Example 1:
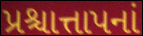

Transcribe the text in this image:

પ્રશ્ચાત્તાપનાં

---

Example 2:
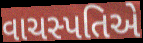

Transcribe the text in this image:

વાચસ્પતિએ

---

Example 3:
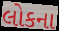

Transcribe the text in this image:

લોકના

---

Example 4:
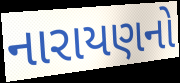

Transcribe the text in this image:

નારાયણનો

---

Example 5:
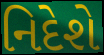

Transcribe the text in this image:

નિદેશે